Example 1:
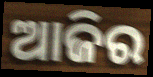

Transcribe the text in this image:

ଆଜିର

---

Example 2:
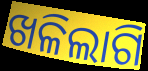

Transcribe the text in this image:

ଖଳିଲାଗି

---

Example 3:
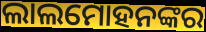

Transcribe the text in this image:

ଲାଲମୋହନଙ୍କର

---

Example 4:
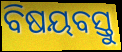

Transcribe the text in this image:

ବିଷୟବସ୍ତୁ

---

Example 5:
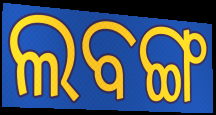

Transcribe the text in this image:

ଲବଙ୍ଗ